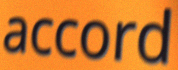
accord